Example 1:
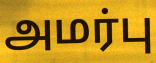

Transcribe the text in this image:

அமர்பு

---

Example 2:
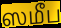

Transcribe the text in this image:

ஸமீப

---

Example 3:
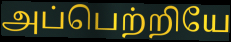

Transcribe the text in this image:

அப்பெற்றியே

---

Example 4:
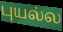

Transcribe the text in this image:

புயல்ல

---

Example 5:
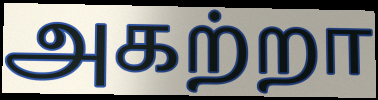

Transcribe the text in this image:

அகற்றா